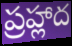
ప్రహ్లాద